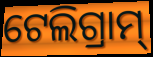
ଟେଲିଗ୍ରାମ୍